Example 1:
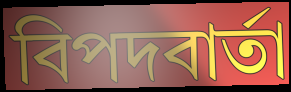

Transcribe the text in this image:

বিপদবার্তা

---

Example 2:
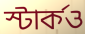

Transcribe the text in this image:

স্টার্কও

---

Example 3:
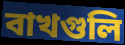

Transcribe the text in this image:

বাখগুলি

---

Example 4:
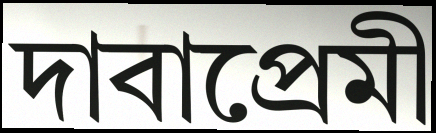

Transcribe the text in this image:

দাবাপ্রেমী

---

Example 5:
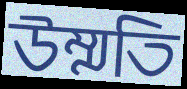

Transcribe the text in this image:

উম্মতি